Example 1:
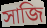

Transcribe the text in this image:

সাজি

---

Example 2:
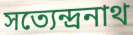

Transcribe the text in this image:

সত্যেন্দ্ৰনাথ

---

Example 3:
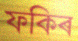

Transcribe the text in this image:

ফকিৰ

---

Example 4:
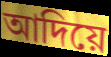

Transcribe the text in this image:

আদিয়ে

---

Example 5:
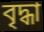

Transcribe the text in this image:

বৃদ্ধা